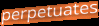
perpetuates